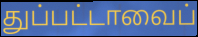
துப்பட்டாவைப்